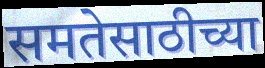
समतेसाठीच्या